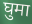
घुमा